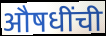
औषधींची